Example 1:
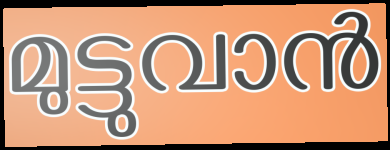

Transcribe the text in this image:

മുട്ടുവാൻ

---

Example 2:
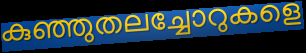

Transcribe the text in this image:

കുഞ്ഞുതലച്ചോറുകളെ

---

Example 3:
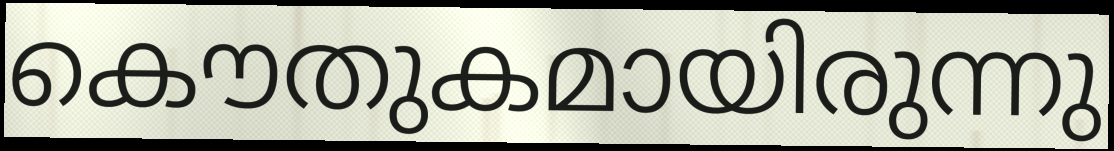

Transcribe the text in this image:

കൌതുകമായിരുന്നു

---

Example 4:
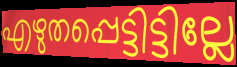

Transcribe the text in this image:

എഴുതപ്പെട്ടിട്ടില്ലേ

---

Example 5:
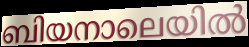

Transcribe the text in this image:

ബിയനാലെയിൽ